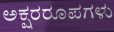
ಅಕ್ಷರರೂಪಗಳು